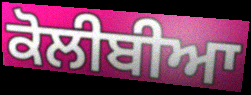
ਕੋਲੀਬੀਆ